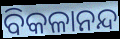
ବିକଳାନନ୍ଦ